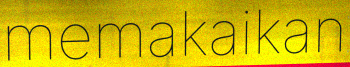
memakaikan